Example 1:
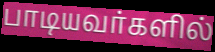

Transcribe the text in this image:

பாடியவர்களில்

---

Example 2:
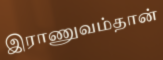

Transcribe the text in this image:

இராணுவம்தான்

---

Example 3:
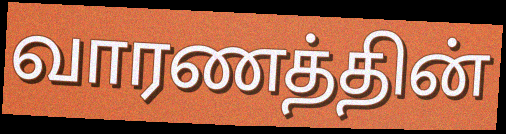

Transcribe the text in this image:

வாரணத்தின்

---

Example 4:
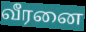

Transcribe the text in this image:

வீரனை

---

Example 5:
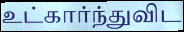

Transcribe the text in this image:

உட்கார்ந்துவிட